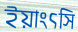
ইয়াংৎসি